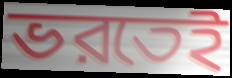
ভরতেই